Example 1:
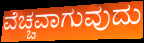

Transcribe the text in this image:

ವೆಚ್ಚವಾಗುವುದು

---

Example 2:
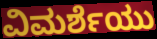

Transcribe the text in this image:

ವಿಮರ್ಶೆಯು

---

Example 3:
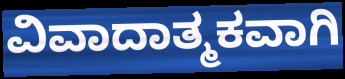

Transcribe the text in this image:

ವಿವಾದಾತ್ಮಕವಾಗಿ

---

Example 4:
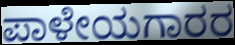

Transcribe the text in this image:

ಪಾಳೇಯಗಾರರ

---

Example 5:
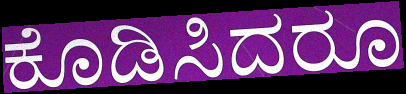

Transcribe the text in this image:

ಕೊಡಿಸಿದರೂ